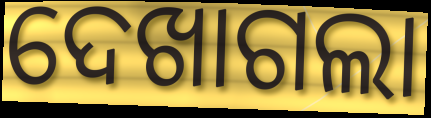
ଦେଖାଗଲା